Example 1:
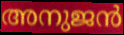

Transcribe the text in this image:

അനുജൻ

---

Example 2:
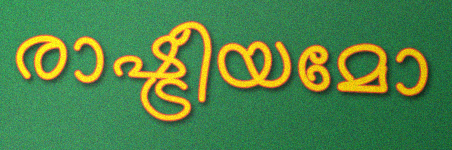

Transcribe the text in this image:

രാഷ്ട്രീയമോ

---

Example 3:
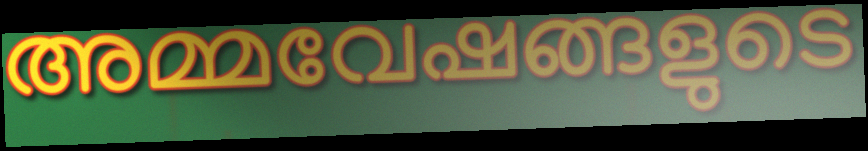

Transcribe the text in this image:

അമ്മവേഷങ്ങളുടെ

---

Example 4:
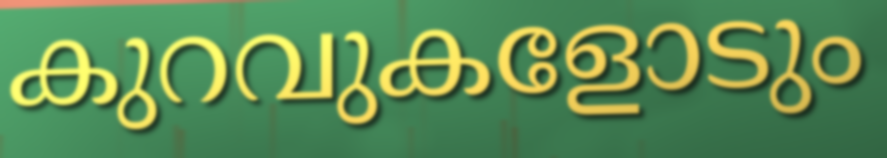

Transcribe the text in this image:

കുറവുകളോടും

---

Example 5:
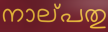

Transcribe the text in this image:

നാല്‌പതു